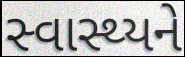
સ્વાસ્થ્યને